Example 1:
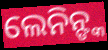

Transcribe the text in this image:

ଲେନିନ୍ଙ୍କ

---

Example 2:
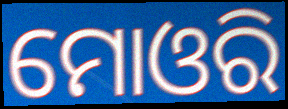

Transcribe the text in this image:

ମୋଓରି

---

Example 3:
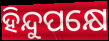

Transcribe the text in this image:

ହିନ୍ଦୁପକ୍ଷେ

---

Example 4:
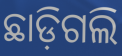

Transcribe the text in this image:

ଛାଡ଼ିଗଲି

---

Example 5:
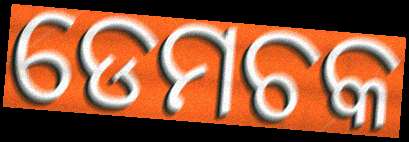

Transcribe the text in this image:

ଡେମଚକ